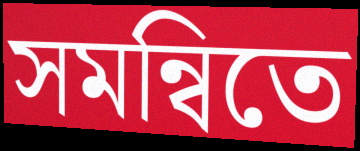
সমন্বিতে